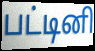
பட்டினி